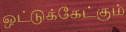
ஒட்டுக்கேட்கும்